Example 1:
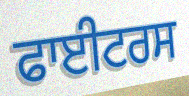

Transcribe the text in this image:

ਫਾਈਟਰਸ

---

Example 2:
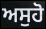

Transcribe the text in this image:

ਅਸੁਹੋ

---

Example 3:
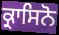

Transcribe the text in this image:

ਕ੍ਰਾਸਿਨੋ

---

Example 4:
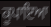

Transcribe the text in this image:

ਕੂਪਾਇਆ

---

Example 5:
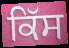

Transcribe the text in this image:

ਕਿੱਸ